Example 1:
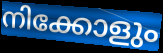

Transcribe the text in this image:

നിക്കോളും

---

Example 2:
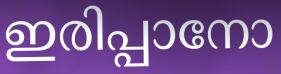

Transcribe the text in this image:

ഇരിപ്പാനോ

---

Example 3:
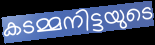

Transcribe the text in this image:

കടമ്മനിട്ടയുടെ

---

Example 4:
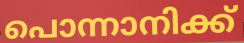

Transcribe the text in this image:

പൊന്നാനിക്ക്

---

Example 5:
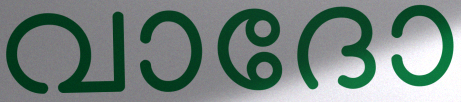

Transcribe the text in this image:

വാദോ